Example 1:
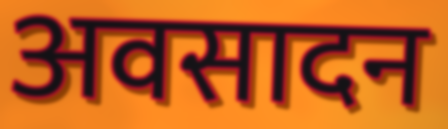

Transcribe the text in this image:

अवसादन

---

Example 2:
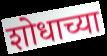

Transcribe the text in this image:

शोधाच्या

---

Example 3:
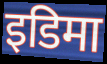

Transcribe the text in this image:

इडिमा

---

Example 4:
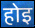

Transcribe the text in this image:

होइ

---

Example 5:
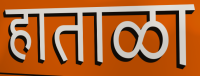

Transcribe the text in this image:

हाताळा